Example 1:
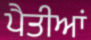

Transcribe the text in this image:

ਪੈਤੀਆਂ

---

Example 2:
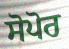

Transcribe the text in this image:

ਸੋਪੋਰ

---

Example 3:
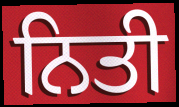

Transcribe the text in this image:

ਨਿਤੀ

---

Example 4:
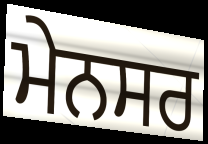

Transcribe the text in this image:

ਮੇਨਸਰ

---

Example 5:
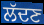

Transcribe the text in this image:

ਲੱਦਣ